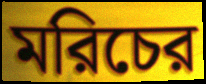
মরিচের